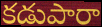
కడుపారా